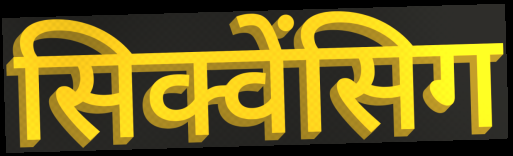
सिक्वेंसिग